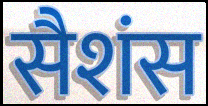
सैशंस